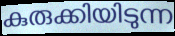
കുരുക്കിയിടുന്ന